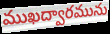
ముఖద్వారమును